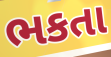
ભકતા